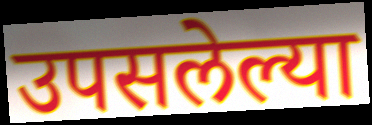
उपसलेल्या